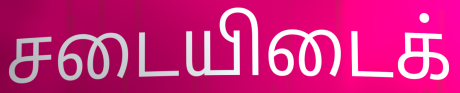
சடையிடைக்